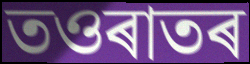
তওৰাতৰ